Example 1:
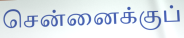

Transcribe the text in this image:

சென்னைக்குப்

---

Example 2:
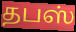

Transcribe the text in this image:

தபஸ்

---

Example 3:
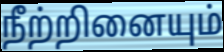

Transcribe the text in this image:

நீற்றினையும்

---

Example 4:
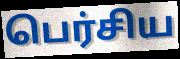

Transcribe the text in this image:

பெர்சிய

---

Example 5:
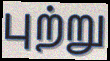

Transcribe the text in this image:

புற்று